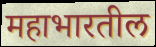
महाभारतील